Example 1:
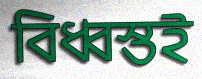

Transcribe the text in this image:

বিধ্বস্তই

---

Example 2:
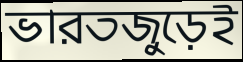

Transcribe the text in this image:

ভারতজুড়েই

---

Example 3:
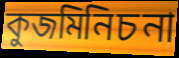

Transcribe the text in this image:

কুজমিনিচনা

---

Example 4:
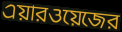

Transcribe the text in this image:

এয়ারওয়েজের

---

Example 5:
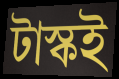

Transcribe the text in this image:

টাস্কই